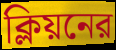
ক্লিয়নের